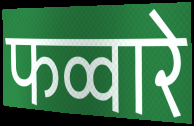
फव्वारे